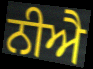
ਨੀਐ